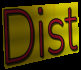
Dist